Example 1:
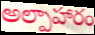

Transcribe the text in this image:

అల్పాహారం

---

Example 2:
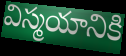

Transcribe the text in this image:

విస్మయానికి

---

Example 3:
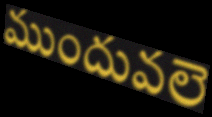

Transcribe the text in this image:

ముందువలె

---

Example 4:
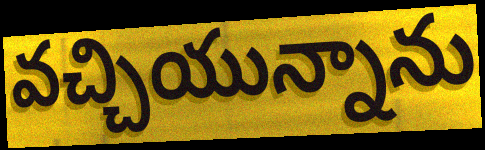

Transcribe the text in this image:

వచ్చియున్నాను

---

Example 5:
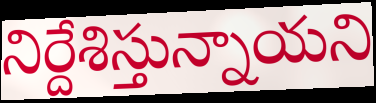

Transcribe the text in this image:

నిర్దేశిస్తున్నాయని